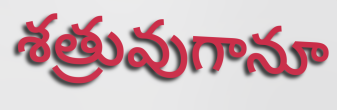
శత్రువుగానూ